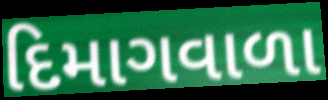
દિમાગવાળા